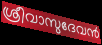
ശ്രീവാസുദേവൻ